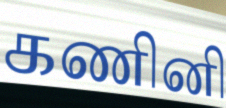
கணினி